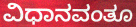
ವಿಧಾನವಂತೂ